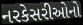
નરકેસરીઓનો